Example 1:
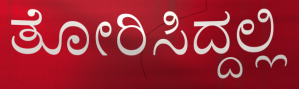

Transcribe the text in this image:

ತೋರಿಸಿದ್ದಲ್ಲಿ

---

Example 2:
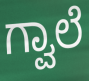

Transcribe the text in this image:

ಗ್ವಾಲೆ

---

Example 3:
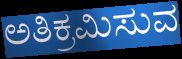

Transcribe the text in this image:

ಅತಿಕ್ರಮಿಸುವ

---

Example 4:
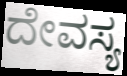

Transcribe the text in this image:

ದೇವಸ್ಯ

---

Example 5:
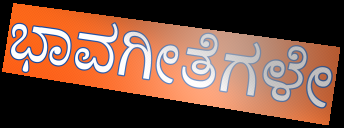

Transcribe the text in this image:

ಭಾವಗೀತೆಗಳೇ